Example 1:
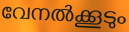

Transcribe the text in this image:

വേനൽക്കൂടും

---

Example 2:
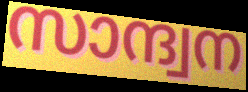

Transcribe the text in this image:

സാന്ദ്വന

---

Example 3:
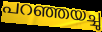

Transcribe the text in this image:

പറഞ്ഞയച്ചു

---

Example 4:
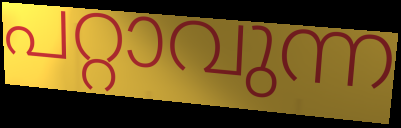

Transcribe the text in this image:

പറ്റാവുന്ന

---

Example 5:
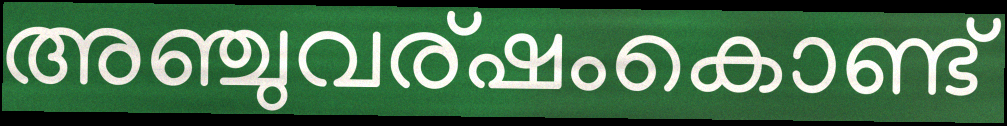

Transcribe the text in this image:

അഞ്ചുവര്ഷംകൊണ്ട്